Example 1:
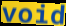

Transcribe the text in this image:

void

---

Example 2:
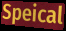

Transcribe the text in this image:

Speical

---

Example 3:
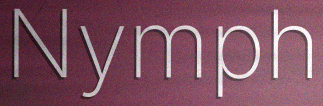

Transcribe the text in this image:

Nymph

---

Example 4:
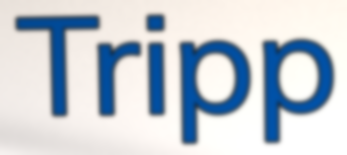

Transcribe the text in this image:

Tripp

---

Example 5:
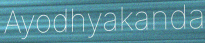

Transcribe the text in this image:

Ayodhyakanda